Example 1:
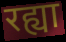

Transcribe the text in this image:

रह्या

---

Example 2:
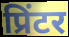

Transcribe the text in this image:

प्रिंटर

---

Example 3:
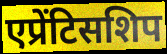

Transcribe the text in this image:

एप्रेंटिसशिप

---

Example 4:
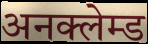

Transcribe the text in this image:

अनक्लेम्ड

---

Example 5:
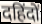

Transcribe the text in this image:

दहिंदों